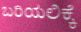
ಬರಿಯಲಿಕ್ಕೆ